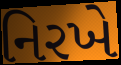
નિરખે